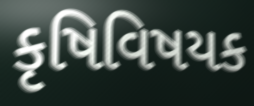
કૃષિવિષયક